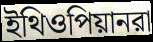
ইথিওপিয়ানরা